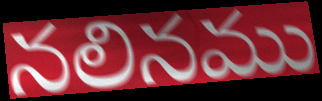
నలినము